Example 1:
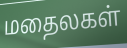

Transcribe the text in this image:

மதைலகள்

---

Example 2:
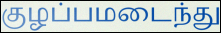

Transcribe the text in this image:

குழப்பமடைந்து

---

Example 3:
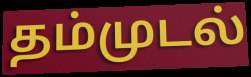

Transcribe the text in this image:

தம்முடல்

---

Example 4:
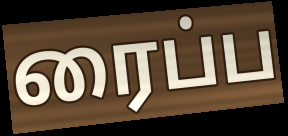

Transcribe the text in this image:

ரைப்ப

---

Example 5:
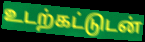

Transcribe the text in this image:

உடற்கட்டுடன்